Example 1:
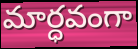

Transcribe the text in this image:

మార్ధవంగా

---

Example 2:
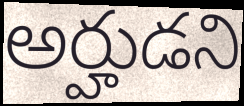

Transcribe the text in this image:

అర్హుడని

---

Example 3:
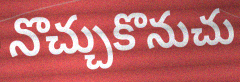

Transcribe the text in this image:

నొచ్చుకొనుచు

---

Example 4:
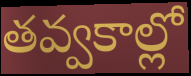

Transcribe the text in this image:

తవ్వకాల్లో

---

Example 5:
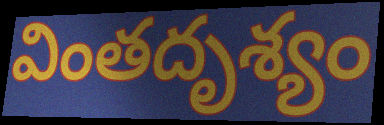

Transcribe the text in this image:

వింతదృశ్యం